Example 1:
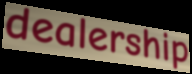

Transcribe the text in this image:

dealership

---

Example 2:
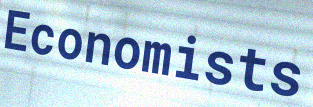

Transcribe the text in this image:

Economists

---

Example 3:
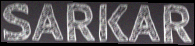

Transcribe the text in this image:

SARKAR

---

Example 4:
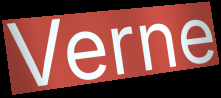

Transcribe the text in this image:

Verne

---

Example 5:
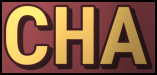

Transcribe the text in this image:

CHA